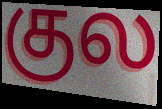
குல